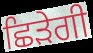
ਛਿੜੇਗੀ